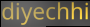
diyechhi